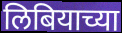
लिबियाच्या